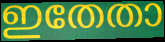
ഇതേതാ